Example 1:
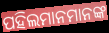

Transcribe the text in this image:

ପହିଲମାନମାନଙ୍କ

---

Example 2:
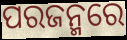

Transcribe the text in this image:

ପରଜନ୍ମରେ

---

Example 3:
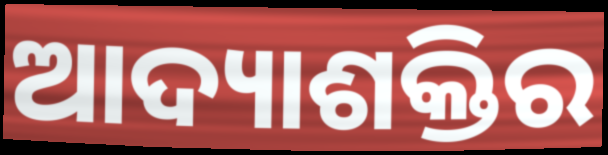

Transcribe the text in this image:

ଆଦ୍ୟାଶକ୍ତିର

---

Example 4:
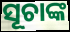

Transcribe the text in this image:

ସୂଚାଙ୍କ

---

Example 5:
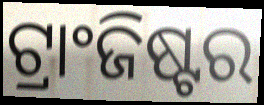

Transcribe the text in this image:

ଟ୍ରାଂଜିଷ୍ଟର